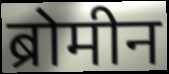
ब्रोमीन